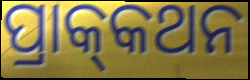
ପ୍ରାକ୍‌କଥନ